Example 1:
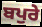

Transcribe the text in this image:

ਬਪੁਰੇ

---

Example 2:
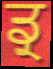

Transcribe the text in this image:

ਡ੍ਰ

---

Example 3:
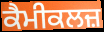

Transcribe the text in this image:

ਕੈਮੀਕਲਜ਼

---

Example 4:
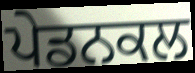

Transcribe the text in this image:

ਪੇਡਨਕਲ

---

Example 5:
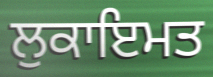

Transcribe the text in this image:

ਲੁਕਾਇਮਤ